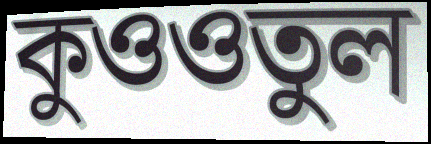
কুওওতুল